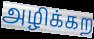
அழிக்கற